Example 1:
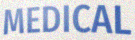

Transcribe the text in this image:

MEDICAL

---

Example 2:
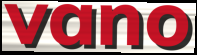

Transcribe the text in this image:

vano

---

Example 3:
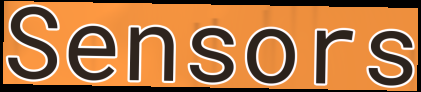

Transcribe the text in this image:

Sensors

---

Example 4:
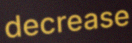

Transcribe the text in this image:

decrease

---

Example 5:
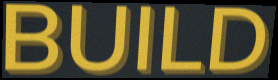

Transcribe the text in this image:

BUILD